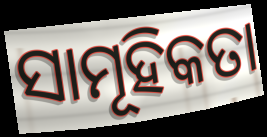
ସାମୂହିକତା